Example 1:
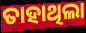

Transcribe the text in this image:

ତାହାଥିଲା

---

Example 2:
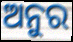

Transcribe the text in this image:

ଅନୁର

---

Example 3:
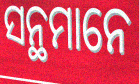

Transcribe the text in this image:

ସନ୍ଥମାନେ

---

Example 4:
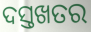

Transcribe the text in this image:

ଦସ୍ତଖତର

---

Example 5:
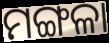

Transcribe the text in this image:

ମଙ୍ଗଳା